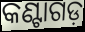
କଣ୍ଟାଗଡ଼